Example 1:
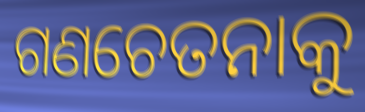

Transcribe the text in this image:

ଗଣଚେତନାକୁ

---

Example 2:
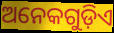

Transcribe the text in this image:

ଅନେକଗୁଡ଼ିଏ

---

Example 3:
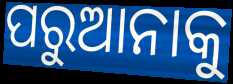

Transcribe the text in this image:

ପରୁଆନାକୁ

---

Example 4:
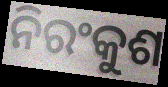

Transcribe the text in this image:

ନିରଂକୁଶ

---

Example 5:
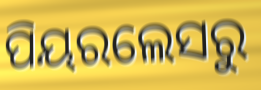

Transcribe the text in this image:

ପିୟରଲେସରୁ